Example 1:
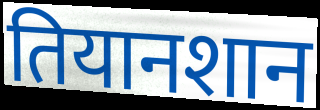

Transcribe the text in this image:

तियानशान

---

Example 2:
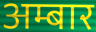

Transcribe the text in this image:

अम्बार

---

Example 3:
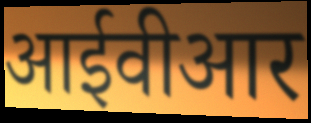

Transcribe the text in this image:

आईवीआर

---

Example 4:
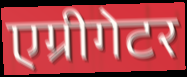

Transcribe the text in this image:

एग्रीगेटर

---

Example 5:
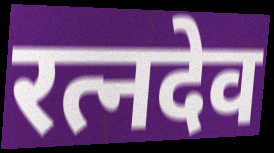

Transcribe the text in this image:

रत्नदेव